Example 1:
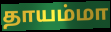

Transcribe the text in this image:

தாயம்மா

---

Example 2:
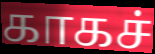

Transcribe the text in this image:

காகச்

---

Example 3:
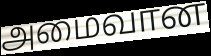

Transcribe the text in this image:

அமைவான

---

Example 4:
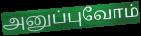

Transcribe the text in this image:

அனுப்புவோம்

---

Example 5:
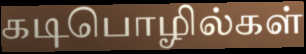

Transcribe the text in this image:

கடிபொழில்கள்